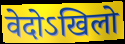
वेदोऽखिलो